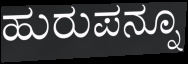
ಹುರುಪನ್ನೂ